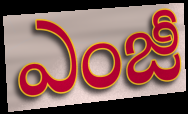
ఎంజీ